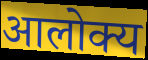
आलोक्य